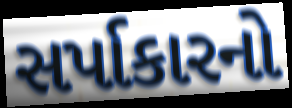
સર્પાકારનો